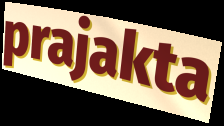
prajakta